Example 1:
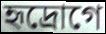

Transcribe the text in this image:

হৃদ্রোগে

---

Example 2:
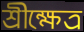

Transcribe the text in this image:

শ্রীক্ষেত্র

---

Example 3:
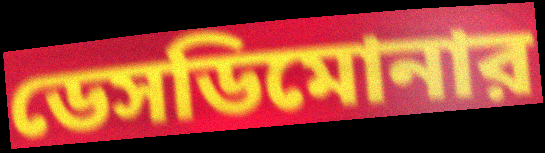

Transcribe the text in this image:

ডেসডিমোনার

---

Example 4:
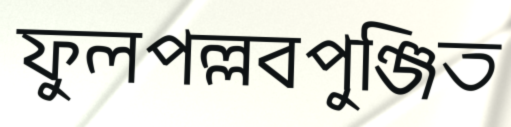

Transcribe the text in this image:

ফুলপল্লবপুঞ্জিত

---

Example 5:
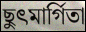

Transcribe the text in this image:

ছুৎমার্গিতা